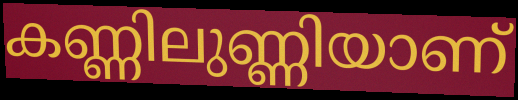
കണ്ണിലുണ്ണിയാണ്